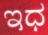
ಇಧ